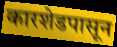
कारशेडपासून